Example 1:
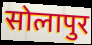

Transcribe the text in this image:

सोलापुर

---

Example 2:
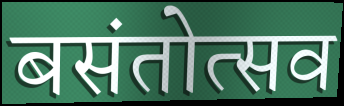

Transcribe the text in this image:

बसंतोत्सव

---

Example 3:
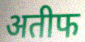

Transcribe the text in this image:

अतीफ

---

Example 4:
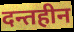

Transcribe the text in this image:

दन्तहीन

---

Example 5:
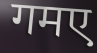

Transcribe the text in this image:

गमए